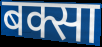
बक्सा